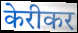
केरीकर